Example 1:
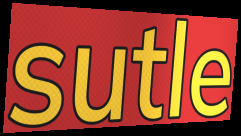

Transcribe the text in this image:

sutle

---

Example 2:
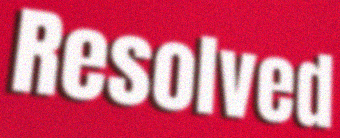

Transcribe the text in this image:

Resolved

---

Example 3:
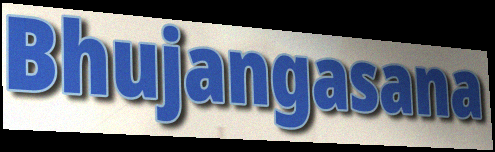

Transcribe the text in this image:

Bhujangasana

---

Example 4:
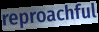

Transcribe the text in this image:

reproachful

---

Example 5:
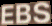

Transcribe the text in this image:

EBS